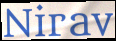
Nirav